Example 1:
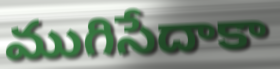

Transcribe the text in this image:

ముగిసేదాకా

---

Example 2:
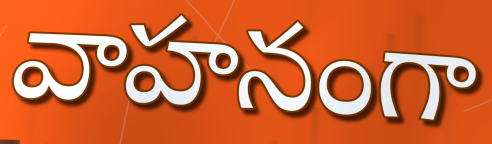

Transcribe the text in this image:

వాహనంగా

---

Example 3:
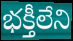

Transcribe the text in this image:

భక్తీలేని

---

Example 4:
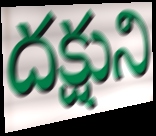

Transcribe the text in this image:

దక్షుని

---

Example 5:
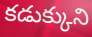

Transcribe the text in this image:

కడుక్కుని